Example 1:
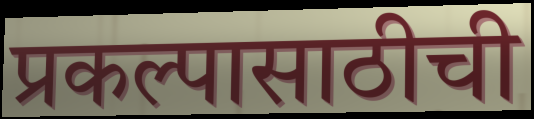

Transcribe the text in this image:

प्रकल्पासाठीची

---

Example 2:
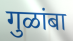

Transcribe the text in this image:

गुळांबा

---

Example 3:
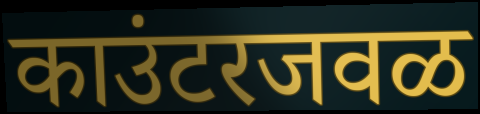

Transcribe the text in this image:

काउंटरजवळ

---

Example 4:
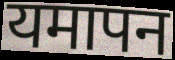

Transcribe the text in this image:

यमापन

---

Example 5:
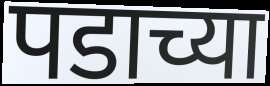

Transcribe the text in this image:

पडाच्या